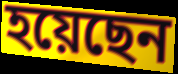
হয়েছেন